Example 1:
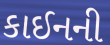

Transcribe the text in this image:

કાઈનની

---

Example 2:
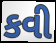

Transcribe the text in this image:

કવી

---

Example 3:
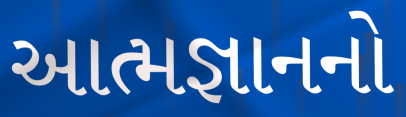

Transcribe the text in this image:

આત્મજ્ઞાનનો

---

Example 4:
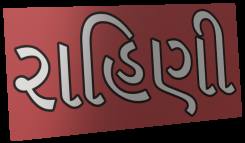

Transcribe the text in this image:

રાહિણી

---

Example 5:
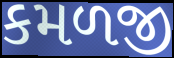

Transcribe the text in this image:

કમળજી